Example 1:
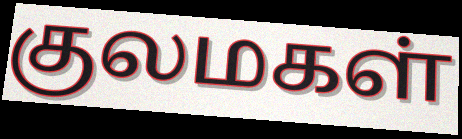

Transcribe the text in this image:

குலமகள்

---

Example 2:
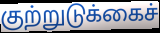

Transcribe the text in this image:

குற்றுடுக்கைச்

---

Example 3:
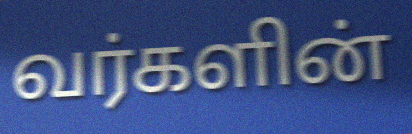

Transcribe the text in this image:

வர்களின்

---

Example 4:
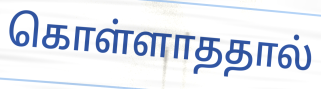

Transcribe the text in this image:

கொள்ளாததால்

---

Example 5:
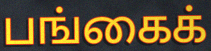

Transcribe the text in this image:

பங்கைக்